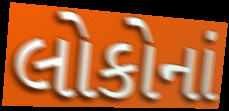
લોકોનાં